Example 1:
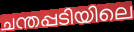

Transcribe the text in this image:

ചന്തപ്പടിയിലെ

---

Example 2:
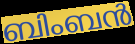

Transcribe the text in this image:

ബിംബൻ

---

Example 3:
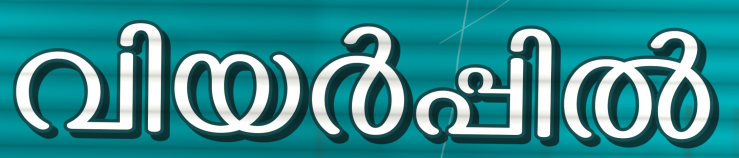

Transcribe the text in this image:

വിയർപ്പിൽ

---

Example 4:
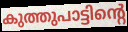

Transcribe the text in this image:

കുത്തുപാട്ടിന്റെ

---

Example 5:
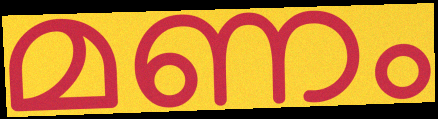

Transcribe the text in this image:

മണം